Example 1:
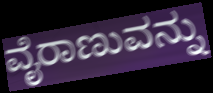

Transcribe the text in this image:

ವೈರಾಣುವನ್ನು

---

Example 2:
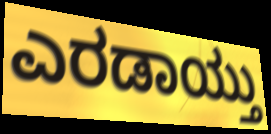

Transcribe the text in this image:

ಎರಡಾಯ್ತು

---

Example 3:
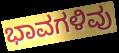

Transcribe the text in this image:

ಭಾವಗಳಿವು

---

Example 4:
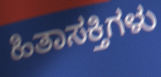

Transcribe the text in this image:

ಹಿತಾಸಕ್ತಿಗಳು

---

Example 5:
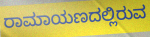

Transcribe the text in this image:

ರಾಮಾಯಣದಲ್ಲಿರುವ